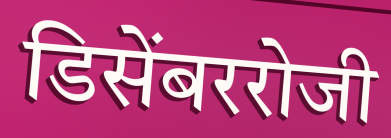
डिसेंबररोजी